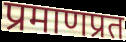
प्रमाणप्रत